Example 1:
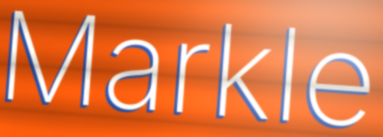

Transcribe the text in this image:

Markle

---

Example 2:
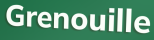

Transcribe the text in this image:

Grenouille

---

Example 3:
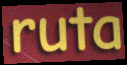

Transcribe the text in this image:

ruta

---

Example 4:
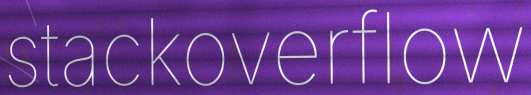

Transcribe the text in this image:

stackoverflow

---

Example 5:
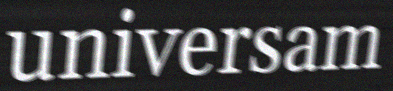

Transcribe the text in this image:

universam